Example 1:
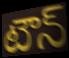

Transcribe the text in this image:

టౌన్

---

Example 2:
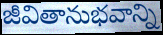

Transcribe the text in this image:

జీవితానుభవాన్ని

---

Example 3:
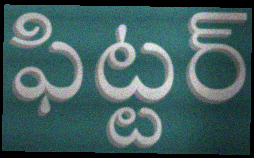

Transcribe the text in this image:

ఫిట్టర్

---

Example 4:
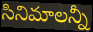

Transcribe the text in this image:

సినిమాలన్నీ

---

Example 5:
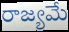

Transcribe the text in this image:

రాజ్యమే